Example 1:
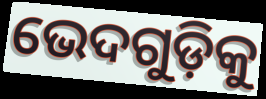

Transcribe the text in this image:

ଭେଦଗୁଡ଼ିକୁ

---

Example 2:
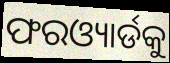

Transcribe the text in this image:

ଫରଓ୍ୟାର୍ଡକୁ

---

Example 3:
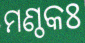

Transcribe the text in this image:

ମଣ୍ଠକଃ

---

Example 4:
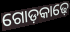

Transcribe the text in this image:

ଗୋଡ଼କାଢ଼େ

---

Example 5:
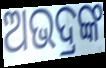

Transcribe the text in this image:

ଅଭଦ୍ରଙ୍କ